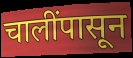
चालींपासून